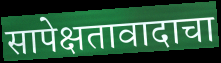
सापेक्षतावादाचा